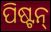
ପିଷ୍ଟନ୍